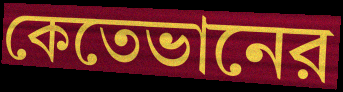
কেতেভানের